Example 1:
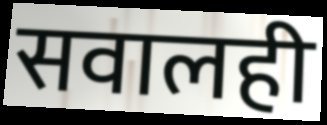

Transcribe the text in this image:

सवालही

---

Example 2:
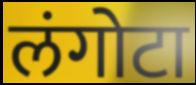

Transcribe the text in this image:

लंगोटा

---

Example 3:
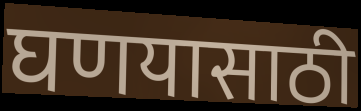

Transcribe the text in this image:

घणयासाठी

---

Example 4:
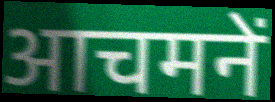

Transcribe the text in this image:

आचमनें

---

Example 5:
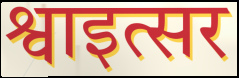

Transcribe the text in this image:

श्वाइत्सर